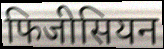
फिजीसियन